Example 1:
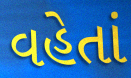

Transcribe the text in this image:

વહેતાં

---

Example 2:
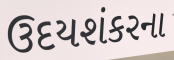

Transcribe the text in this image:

ઉદયશંકરના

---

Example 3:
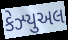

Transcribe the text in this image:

કેઝ્યુઅલ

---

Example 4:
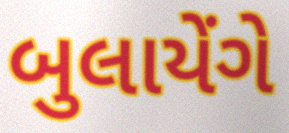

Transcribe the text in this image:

બુલાયેંગે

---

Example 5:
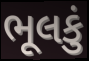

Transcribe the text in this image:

ભૂલકું